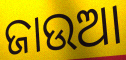
ଜାଉଆ